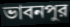
ভাবনপুর